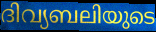
ദിവ്യബലിയുടെ